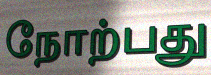
நோற்பது